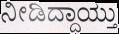
ನೀಡಿದ್ದಾಯ್ತು